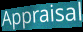
Appraisal